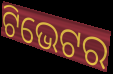
ଟିଭେଟର